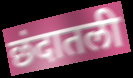
छंदातली